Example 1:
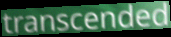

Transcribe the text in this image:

transcended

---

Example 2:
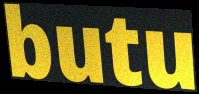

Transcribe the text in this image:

butu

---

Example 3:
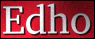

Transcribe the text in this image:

Edho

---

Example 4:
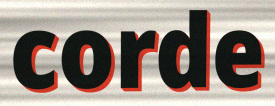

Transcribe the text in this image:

corde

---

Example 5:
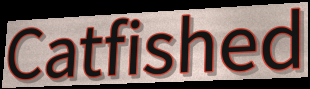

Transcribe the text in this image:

Catfished